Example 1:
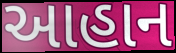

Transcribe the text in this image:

આહાન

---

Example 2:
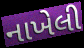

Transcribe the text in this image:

નાખેલી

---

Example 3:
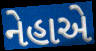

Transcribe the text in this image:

નેહાએ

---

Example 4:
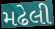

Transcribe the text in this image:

મઢેલી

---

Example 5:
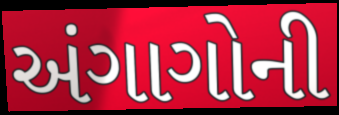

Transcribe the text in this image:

અંગાગોની